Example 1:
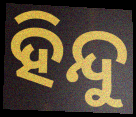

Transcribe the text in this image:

ହିନ୍ଦୁ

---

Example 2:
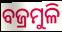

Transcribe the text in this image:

ବଜ୍ରମୁଳି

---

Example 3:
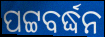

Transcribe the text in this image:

ପଟ୍ଟବର୍ଦ୍ଧନ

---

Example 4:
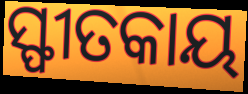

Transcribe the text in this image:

ସ୍ଫୀତକାୟ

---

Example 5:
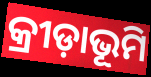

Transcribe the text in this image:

କ୍ରୀଡ଼ାଭୂମି